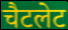
चैटलेट